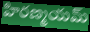
హిరణ్మయమ్